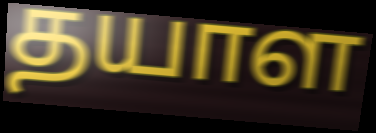
தயாள